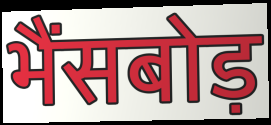
भैंसबोड़